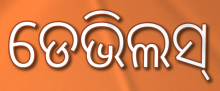
ଡେଭିଲସ୍